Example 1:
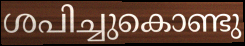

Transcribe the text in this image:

ശപിച്ചുകൊണ്ടു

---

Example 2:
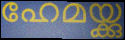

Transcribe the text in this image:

ഹേമയ്ക്കു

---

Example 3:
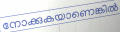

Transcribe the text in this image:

നോക്കുകയാണെങ്കിൽ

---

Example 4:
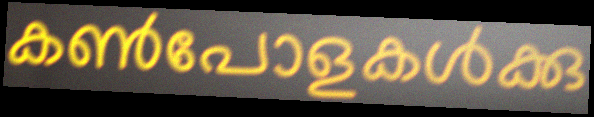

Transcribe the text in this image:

കൺപോളകൾക്കു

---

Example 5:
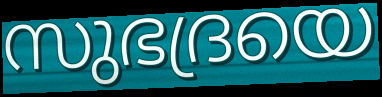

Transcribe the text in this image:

സുഭദ്രയെ